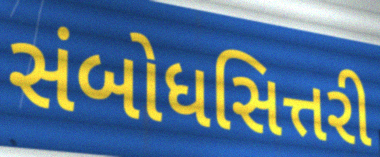
સંબોધસિત્તરી